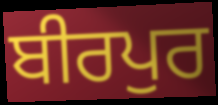
ਬੀਰਪੁਰ